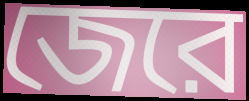
জেরে